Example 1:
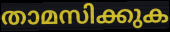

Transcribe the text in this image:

താമസിക്കുക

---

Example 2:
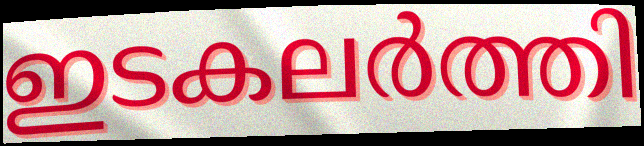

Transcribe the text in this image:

ഇടകലർത്തി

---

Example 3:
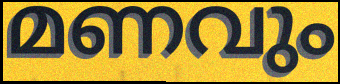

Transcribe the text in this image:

മണവും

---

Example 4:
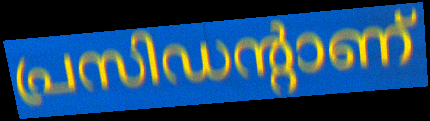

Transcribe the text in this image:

പ്രസിഡന്റാണ്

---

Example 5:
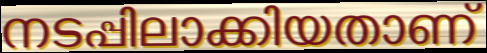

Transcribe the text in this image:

നടപ്പിലാക്കിയതാണ്